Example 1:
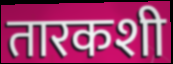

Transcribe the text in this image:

तारकशी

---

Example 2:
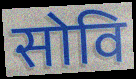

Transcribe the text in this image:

सोवि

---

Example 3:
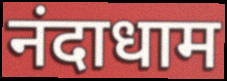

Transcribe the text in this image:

नंदाधाम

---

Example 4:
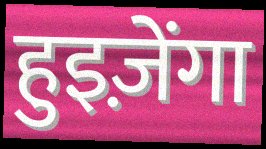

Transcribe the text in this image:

हुइज़ेंगा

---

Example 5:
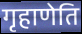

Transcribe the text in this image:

गृहाणेति